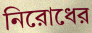
নিরোধের